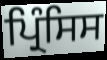
ਪ੍ਰਿੰਸਿਸ